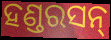
ହଣ୍ଡରସନ୍